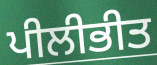
ਪੀਲੀਭੀਤ